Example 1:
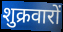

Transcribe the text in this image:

शुक्रवारों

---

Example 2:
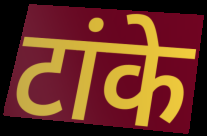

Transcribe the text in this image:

टांके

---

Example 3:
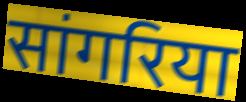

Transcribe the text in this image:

सांगरिया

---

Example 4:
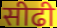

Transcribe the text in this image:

सीढी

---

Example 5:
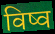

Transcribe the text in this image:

विष्व